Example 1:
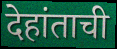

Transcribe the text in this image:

देहांताची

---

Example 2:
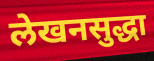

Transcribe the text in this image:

लेखनसुद्धा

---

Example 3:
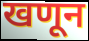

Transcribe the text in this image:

खणून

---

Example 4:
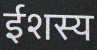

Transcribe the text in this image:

ईशस्य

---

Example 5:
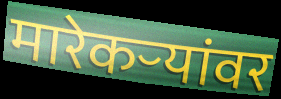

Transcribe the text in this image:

मारेकऱ्यांवर